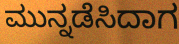
ಮುನ್ನಡೆಸಿದಾಗ